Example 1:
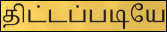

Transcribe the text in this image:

திட்டப்படியே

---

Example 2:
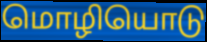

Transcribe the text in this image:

மொழியொடு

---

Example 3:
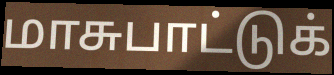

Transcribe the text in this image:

மாசுபாட்டுக்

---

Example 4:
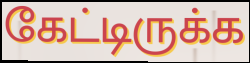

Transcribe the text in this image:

கேட்டிருக்க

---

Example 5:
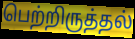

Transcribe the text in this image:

பெற்றிருத்தல்